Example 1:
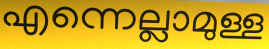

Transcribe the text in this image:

എന്നെല്ലാമുള്ള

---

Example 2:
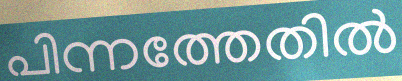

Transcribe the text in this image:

പിന്നത്തേതിൽ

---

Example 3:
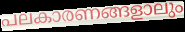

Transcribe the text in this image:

പലകാരണങ്ങളാലും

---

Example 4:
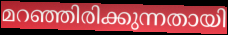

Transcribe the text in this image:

മറഞ്ഞിരിക്കുന്നതായി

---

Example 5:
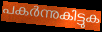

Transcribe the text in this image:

പകർന്നുകിട്ടുക